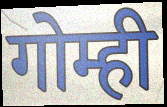
गोम्ही